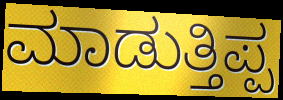
ಮಾಡುತ್ತಿಪ್ಪ